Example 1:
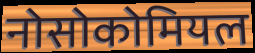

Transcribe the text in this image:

नोसोकोमियल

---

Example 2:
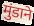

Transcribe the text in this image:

मुंडाने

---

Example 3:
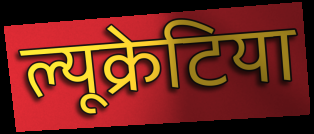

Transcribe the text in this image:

ल्यूक्रेटिया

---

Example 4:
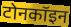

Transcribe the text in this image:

टोनकॉइन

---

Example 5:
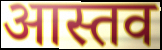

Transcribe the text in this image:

आस्तव